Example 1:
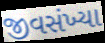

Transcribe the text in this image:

જીવસંખ્યા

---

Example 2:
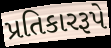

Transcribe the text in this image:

પ્રતિકારરૂપે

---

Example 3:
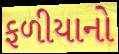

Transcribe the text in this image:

ફળીયાનો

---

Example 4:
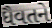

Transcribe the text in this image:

ધૈવતને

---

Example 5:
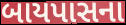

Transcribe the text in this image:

બાયપાસના